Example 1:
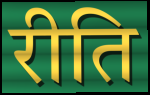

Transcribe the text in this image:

रीति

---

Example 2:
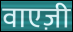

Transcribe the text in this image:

वाएज़ी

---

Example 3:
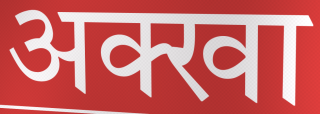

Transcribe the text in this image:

अक्खा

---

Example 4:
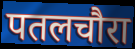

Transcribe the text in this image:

पतलचौरा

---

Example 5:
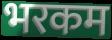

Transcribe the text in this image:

भरकम